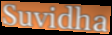
Suvidha